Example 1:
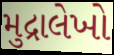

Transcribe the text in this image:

મુદ્રાલેખો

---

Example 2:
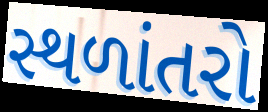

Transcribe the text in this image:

સ્થળાંતરો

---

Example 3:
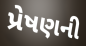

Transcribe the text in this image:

પ્રેષણની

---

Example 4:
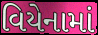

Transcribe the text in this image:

વિયેનામાં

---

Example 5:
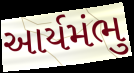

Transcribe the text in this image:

આર્યમંભુ